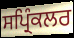
ਸਪ੍ਰਿੰਕਲਰ